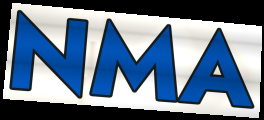
NMA